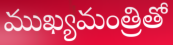
ముఖ్యమంత్రితో